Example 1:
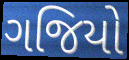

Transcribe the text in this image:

ગજિયો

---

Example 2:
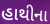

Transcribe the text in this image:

હાથીના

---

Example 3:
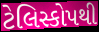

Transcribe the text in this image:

ટેલિસ્કોપથી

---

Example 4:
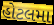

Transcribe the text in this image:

હોટલમા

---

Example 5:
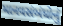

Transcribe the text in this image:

માનવસંબંધોનું